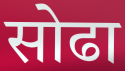
सोढा